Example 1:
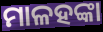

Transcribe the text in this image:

ମାଳହଙ୍କା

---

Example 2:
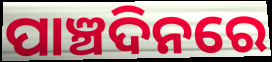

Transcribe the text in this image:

ପାଞ୍ଚଦିନରେ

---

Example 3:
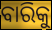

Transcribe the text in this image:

ବାରିକୁ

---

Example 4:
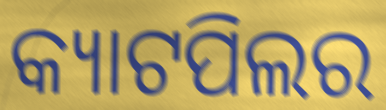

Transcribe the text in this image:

କ୍ୟାଟପିଲର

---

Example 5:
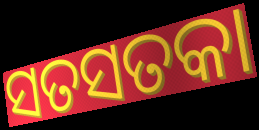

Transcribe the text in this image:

ସତସତକା